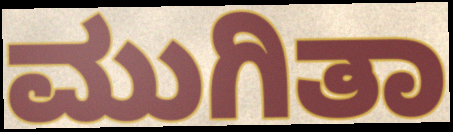
ಮುಗಿತಾ